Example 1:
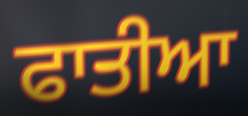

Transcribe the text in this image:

ਫਾਤੀਆ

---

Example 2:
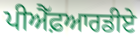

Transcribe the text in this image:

ਪੀਐੱਫ਼ਆਰਡੀਏ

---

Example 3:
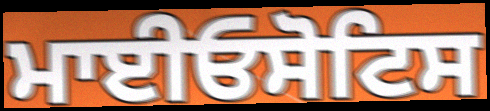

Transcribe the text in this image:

ਮਾਈਓਸੋਟਿਸ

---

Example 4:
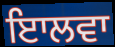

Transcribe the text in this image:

ਇਾਲਵਾ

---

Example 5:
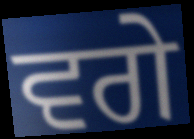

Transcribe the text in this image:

ਵਗੇ